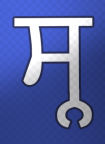
ਸ੍ਨ